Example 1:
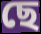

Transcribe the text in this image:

ছে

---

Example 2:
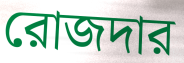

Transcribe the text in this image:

রোজদার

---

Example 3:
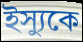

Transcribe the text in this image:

ইস্যুকে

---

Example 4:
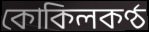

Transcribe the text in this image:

কোকিলকণ্ঠ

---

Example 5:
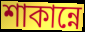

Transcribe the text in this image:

শাকান্নে